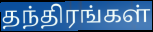
தந்திரங்கள்